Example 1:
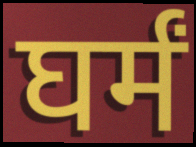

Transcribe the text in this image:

घर्मं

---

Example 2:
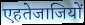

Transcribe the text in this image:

एहतेजाजियों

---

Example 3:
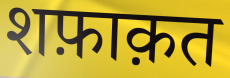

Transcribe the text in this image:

शफ़ाक़त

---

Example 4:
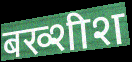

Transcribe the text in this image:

बख्शीश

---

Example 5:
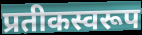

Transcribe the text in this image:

प्रतीकस्वरूप